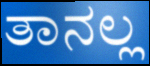
ತಾನಲ್ಲ